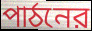
পাঠনের